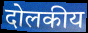
दोलकीय